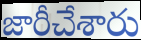
జారీచేశారు